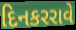
દિનકરરાવે